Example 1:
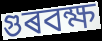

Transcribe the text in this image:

গুৰবক্ষ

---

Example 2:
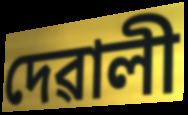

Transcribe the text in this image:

দেৱালী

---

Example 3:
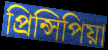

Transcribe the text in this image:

প্ৰিন্সিপিয়া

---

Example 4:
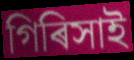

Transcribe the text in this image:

গিৰিসাই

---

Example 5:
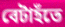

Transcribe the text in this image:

বেটাহঁতে